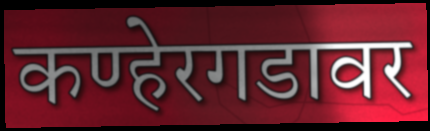
कण्हेरगडावर